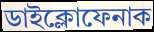
ডাইক্লোফেনাক